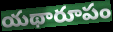
యథారూపం